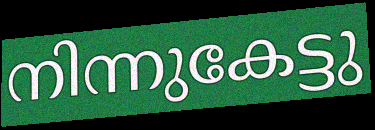
നിന്നുകേട്ടു